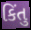
કિંતુ